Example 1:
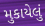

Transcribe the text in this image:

મુકાયેલું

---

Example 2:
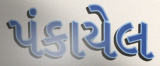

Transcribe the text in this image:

પંકાયેલ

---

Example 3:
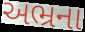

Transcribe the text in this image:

અભ્રના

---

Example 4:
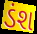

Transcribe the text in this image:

ડંશ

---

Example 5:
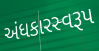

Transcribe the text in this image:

અંધકારસ્વરૂપ